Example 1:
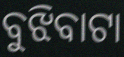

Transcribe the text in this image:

ବୁଝିବାଟା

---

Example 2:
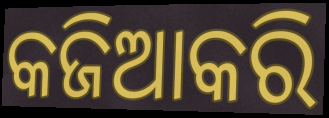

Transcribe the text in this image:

କଜିଆକରି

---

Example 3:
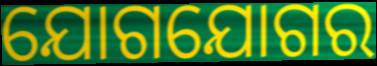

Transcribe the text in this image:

ଯୋଗଯୋଗର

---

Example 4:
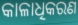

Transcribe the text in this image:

କାଳାଧିକରଣ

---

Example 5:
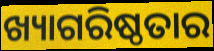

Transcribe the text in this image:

ଖ୍ୟାଗରିଷ୍ଠତାର